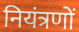
नियंत्रणों